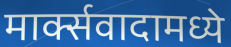
मार्क्सवादामध्ये